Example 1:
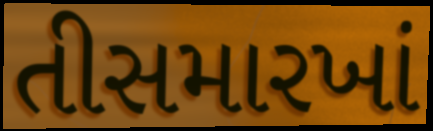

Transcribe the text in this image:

તીસમારખાં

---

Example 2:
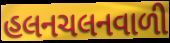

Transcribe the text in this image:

હલનચલનવાળી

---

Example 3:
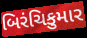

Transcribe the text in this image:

બિરંચિકુમાર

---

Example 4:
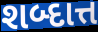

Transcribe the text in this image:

શબ્દાત્ત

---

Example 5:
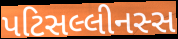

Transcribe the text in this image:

પટિસલ્લીનસ્સ